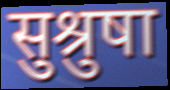
सुश्रुषा